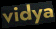
vidya